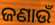
ଜଣାଉଁ